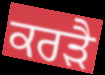
ਕਰੜੈ